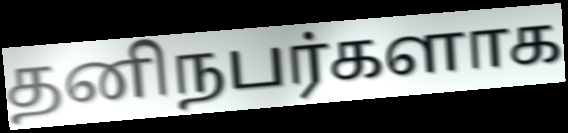
தனிநபர்களாக